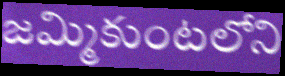
జమ్మికుంటలోని